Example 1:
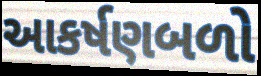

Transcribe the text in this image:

આકર્ષણબળો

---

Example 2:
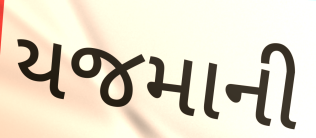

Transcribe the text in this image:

યજમાની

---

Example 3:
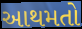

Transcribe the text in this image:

આથમતો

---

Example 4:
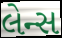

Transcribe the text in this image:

લેન્સ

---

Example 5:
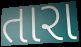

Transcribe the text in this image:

તારા